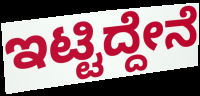
ಇಟ್ಟಿದ್ದೇನೆ